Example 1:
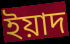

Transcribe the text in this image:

ইয়াদ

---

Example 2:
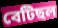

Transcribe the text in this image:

বেটিছল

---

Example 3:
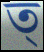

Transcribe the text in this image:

ত্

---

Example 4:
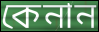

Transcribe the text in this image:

কেনান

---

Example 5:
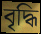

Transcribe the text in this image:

বৃদ্ধি